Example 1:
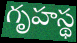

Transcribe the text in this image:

గృహస్థ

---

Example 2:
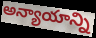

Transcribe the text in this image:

అన్యాయాన్ని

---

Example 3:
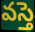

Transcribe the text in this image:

వస్తె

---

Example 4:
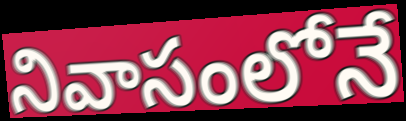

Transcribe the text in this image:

నివాసంలోనే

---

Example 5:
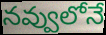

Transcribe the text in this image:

నవ్వులోనే